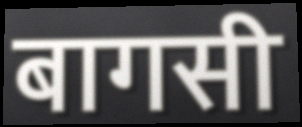
बागसी